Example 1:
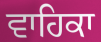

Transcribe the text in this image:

ਵਾਹਿਕਾ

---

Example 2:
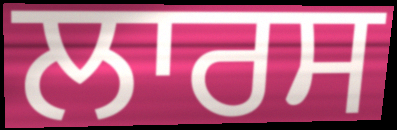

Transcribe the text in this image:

ਲਾਰਸ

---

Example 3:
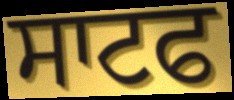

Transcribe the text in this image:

ਸਾਟਫ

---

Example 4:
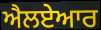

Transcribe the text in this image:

ਐਲਏਆਰ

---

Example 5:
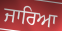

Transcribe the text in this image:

ਜਾਰਿਆ